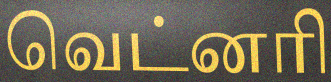
வெட்னரி